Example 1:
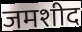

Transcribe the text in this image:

जमशीद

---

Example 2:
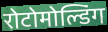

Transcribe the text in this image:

रोटोमोल्डिंग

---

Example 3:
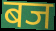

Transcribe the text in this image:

बज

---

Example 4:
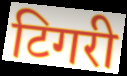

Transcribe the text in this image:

टिगरी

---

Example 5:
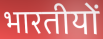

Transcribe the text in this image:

भारतीयों